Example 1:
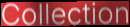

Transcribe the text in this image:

Collection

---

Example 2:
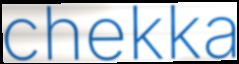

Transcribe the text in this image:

chekka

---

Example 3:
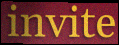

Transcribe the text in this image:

invite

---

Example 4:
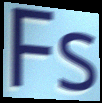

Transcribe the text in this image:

Fs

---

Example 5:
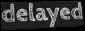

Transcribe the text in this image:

delayed